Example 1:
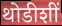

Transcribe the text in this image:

थोडीशीं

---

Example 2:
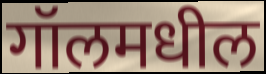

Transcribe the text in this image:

गॉलमधील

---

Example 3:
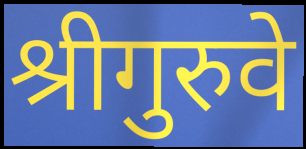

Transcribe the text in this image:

श्रीगुरुवे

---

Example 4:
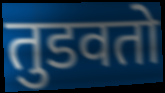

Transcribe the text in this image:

तुडवतो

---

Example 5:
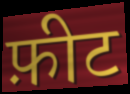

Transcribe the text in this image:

फ़ीट